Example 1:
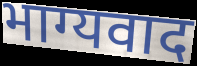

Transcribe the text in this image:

भाग्यवाद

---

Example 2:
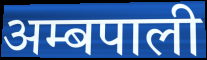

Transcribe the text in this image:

अम्बपाली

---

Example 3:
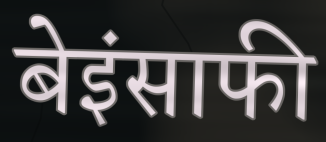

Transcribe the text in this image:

बेइंसाफी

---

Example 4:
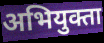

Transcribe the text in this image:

अभियुक्ता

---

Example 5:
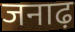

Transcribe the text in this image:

जनाढ़